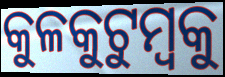
କୁଳକୁଟୁମ୍ବକୁ